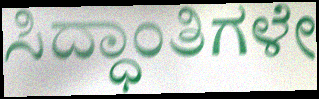
ಸಿದ್ಧಾಂತಿಗಳೇ